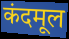
कंदमूल